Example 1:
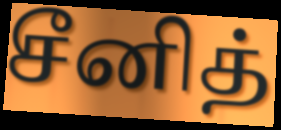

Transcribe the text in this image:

சீனித்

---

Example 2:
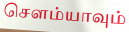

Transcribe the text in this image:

சௌம்யாவும்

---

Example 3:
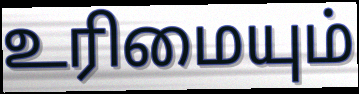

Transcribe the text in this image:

உரிமையும்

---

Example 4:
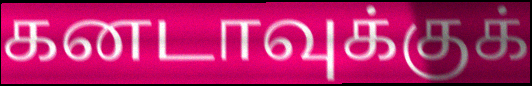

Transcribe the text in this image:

கனடாவுக்குக்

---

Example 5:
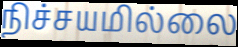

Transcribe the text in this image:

நிச்சயமில்லை